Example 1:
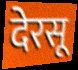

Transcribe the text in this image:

देरसू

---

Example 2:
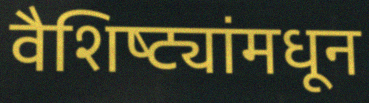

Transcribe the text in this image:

वैशिष्ट्यांमधून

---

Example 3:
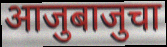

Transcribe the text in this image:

आजुबाजुचा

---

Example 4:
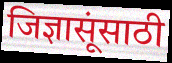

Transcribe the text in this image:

जिज्ञासूंसाठी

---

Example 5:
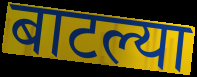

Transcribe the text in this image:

बाटल्या